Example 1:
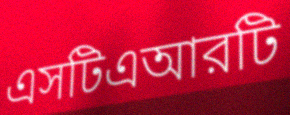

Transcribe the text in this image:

এসটিএআরটি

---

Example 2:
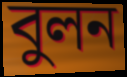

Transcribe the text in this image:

বুলন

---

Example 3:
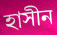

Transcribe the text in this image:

হাসীন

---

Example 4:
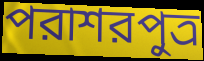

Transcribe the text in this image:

পরাশরপুত্র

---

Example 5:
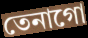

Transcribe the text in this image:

তেনাগো